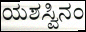
ಯಶಸ್ವಿನಂ